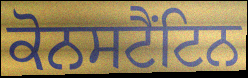
ਕੋਨਸਟੈਂਟਿਨ